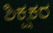
ಶಿಕ್ಷಕರ